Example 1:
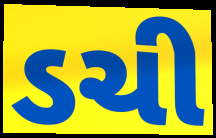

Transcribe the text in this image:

ડચી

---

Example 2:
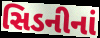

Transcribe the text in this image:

સિડનીનાં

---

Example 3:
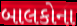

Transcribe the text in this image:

બાલકોના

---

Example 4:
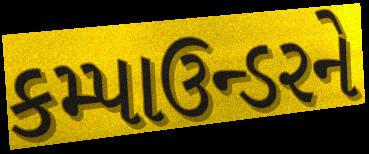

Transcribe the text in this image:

કમ્પાઉન્ડરને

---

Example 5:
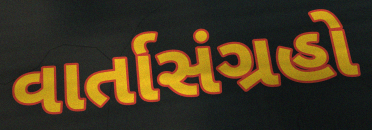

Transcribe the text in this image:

વાર્તાસંગ્રહો